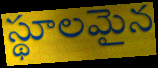
స్థూలమైన